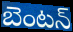
బెంటన్